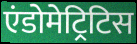
एंडोमेट्रिटिस